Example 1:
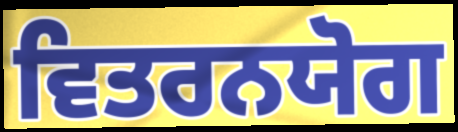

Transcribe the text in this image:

ਵਿਤਰਨਯੋਗ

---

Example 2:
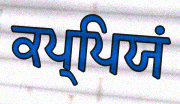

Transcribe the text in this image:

ਕਪ੍ਪਿਯਂ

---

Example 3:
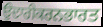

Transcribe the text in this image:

ਉਦਾਰੀਕਰਨਭਾਰਤ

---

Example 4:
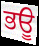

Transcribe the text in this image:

ਭਊ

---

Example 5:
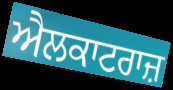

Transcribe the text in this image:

ਐਲਕਾਟਰਾਜ਼